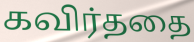
கவிர்ததை